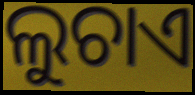
ଲୁଚାଏ